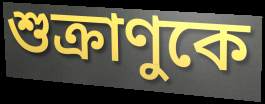
শুক্রাণুকে